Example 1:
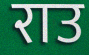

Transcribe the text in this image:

राउ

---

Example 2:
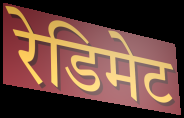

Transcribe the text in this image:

रेडिमेट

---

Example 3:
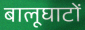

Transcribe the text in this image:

बालूघाटों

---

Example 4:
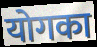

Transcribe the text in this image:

योगका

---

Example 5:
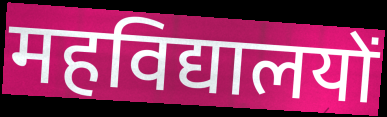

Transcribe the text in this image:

महविद्यालयों